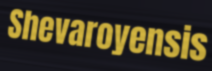
Shevaroyensis